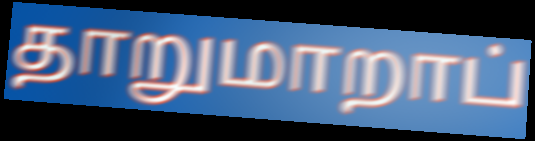
தாறுமாறாப்